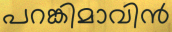
പറങ്കിമാവിൻ